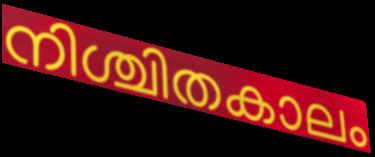
നിശ്ചിതകാലം